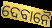
ଦେବାନୈ